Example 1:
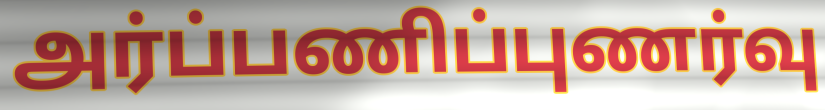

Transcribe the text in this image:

அர்ப்பணிப்புணர்வு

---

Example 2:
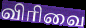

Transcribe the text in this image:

விரிவை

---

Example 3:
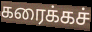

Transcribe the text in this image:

கரைக்கச்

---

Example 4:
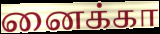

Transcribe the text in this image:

னைக்கா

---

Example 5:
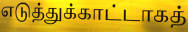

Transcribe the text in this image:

எடுத்துக்காட்டாகத்